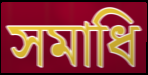
সমাধি